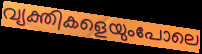
വ്യക്തികളെയുംപോലെ